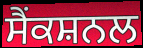
ਸੈਂਕਸ਼ਨਲ